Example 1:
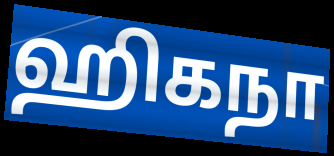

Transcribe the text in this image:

ஹிகநா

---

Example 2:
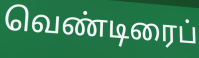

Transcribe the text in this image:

வெண்டிரைப்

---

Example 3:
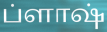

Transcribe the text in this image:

ப்ளாஷ்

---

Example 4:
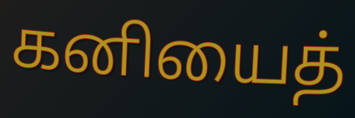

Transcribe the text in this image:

கனியைத்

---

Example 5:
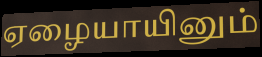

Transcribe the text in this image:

ஏழையாயினும்